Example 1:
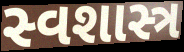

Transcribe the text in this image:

સ્વશાસ્ત્ર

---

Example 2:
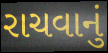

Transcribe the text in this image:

રાચવાનું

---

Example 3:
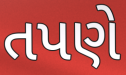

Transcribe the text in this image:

તપણે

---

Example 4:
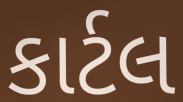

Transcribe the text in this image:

કાર્ટલ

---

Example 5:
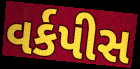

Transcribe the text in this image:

વર્કપીસ